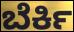
ಬೆರ್ಕಿ